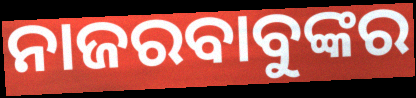
ନାଜରବାବୁଙ୍କର